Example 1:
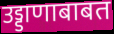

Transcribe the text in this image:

उड्डाणाबाबत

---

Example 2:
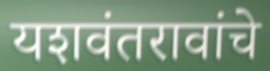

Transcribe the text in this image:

यशवंतरावांचे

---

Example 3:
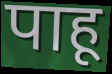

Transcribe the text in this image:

पाहू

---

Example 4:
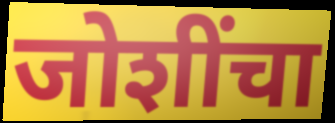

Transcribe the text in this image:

जोशींचा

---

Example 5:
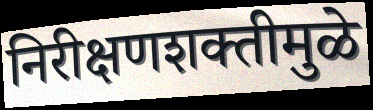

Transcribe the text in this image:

निरीक्षणशक्तीमुळे